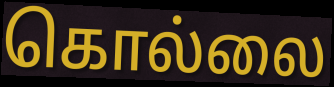
கொல்லை